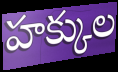
హక్కుల